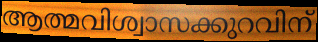
ആത്മവിശ്വാസക്കുറവിന്